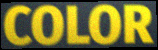
COLOR